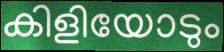
കിളിയോടും